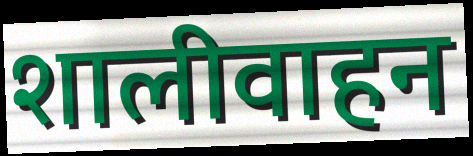
शालीवाहन